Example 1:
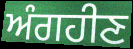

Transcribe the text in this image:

ਅੰਗਹੀਣ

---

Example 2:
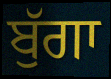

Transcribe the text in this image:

ਬੁੱਗਾ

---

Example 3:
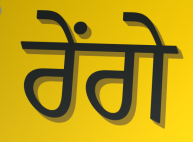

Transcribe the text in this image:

ਰੇਂਗੇ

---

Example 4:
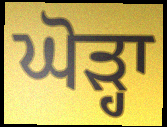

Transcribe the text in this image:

ਘੋੜ੍ਹਾ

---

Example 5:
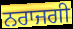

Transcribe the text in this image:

ਨਰਾਜਗੀ